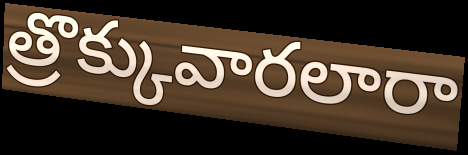
త్రొక్కువారలారా